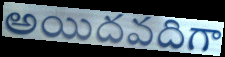
అయిదవదిగా